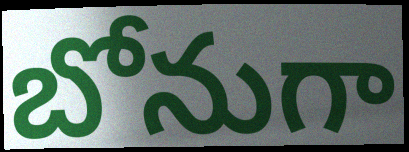
బోనుగా